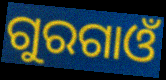
ଗୁରଗାଓଁ